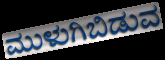
ಮುಳುಗಿಬಿಡುವ